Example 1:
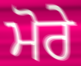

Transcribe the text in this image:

ਮੋਰੇ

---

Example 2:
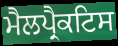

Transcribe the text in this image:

ਮੈਲਪ੍ਰੈਕਟਿਸ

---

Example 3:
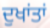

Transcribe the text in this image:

ਦੁਖਾਂਤਾਂ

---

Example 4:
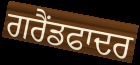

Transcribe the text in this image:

ਗਰੈਂਡਫਾਦਰ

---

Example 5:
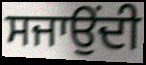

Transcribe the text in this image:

ਸਜਾਉਂਦੀ